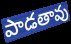
పాడతావు